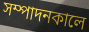
সম্পাদনকালে